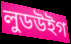
লুডউইগ